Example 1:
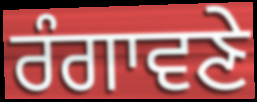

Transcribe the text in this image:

ਰੰਗਾਵਣੇ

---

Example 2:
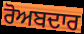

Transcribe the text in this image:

ਰੋਅਬਦਾਰ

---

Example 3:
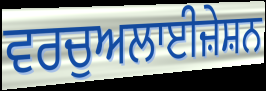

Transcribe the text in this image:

ਵਰਚੁਅਲਾਈਜ਼ੇਸ਼ਨ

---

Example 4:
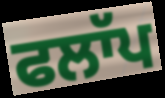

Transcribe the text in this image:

ਫਲਾੱਪ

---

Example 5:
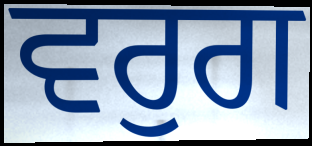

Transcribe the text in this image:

ਵਰੁਗ